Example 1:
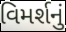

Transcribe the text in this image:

વિમર્શનું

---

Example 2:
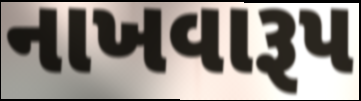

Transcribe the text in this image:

નાખવારૂપ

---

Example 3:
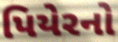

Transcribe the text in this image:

પિયેરનો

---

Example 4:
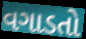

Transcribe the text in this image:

વગાડતો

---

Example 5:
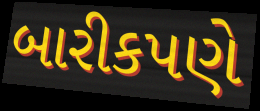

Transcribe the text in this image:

બારીકપણે